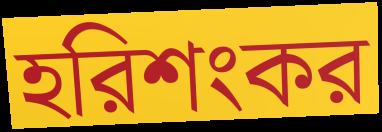
হরিশংকর